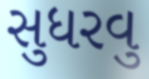
સુધરવુ